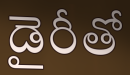
డైరీతో